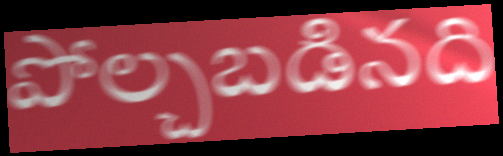
పోల్చబడినది